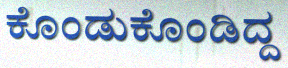
ಕೊಂಡುಕೊಂಡಿದ್ದ